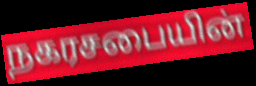
நகரசபையின்